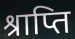
श्राप्ति